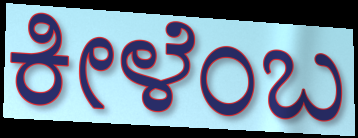
ಕೀಳೆಂಬ